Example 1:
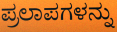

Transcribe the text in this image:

ಪ್ರಲಾಪಗಳನ್ನು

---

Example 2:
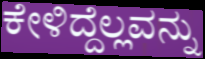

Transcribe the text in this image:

ಕೇಳಿದ್ದೆಲ್ಲವನ್ನು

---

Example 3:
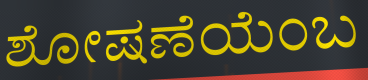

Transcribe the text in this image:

ಶೋಷಣೆಯೆಂಬ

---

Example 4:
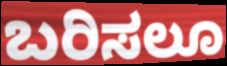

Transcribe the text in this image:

ಬರಿಸಲೂ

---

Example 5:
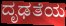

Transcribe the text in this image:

ದೃಢತೆಯ